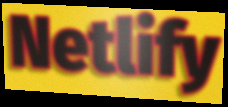
Netlify